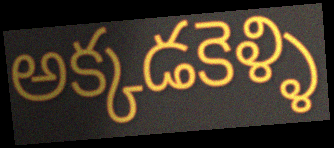
అక్కడకెళ్ళి